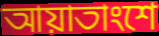
আয়াতাংশে